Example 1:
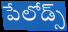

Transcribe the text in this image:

పేలోడ్స్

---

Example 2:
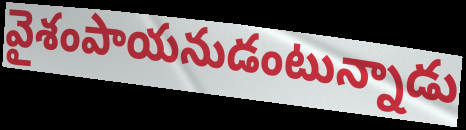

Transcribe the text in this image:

వైశంపాయనుడంటున్నాడు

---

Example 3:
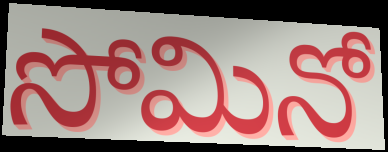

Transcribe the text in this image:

సోమినో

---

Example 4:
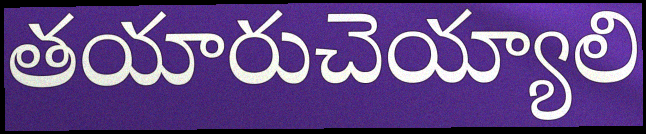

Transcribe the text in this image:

తయారుచెయ్యాలి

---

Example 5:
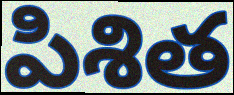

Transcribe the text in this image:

పిశిత